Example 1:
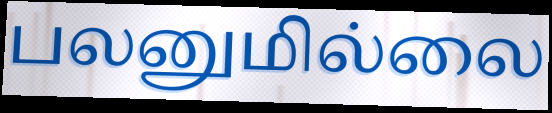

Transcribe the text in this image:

பலனுமில்லை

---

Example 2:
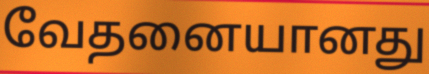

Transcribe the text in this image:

வேதனையானது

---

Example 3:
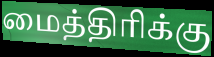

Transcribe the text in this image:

மைத்திரிக்கு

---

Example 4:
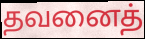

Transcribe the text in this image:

தவனைத்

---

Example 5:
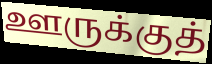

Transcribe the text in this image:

ஊருக்குத்